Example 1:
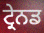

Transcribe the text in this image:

ਟ੍ਰੇਨਡ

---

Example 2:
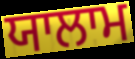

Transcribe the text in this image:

ਯਾਲਾਮ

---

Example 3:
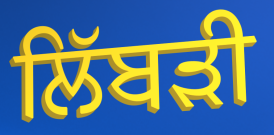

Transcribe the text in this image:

ਲਿੱਬੜੀ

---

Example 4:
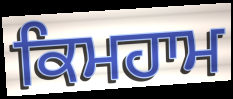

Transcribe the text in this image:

ਕਿਮਹਾਮ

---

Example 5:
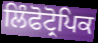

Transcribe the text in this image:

ਲਿੰਫੋਟ੍ਰੋਪਿਕ